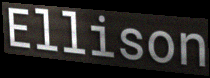
Ellison